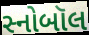
સ્નોબૉલ